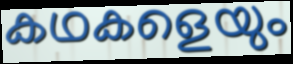
കഥകളെയും